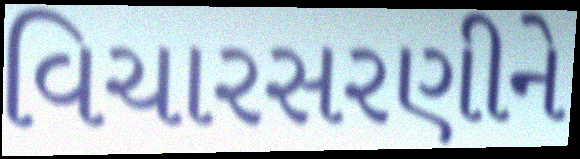
વિચારસરણીને